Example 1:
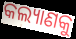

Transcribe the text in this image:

କଲ୍ୟାଣକୁ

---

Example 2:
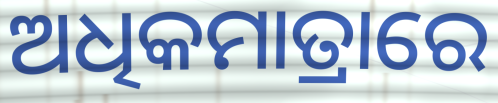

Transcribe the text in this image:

ଅଧିକମାତ୍ରାରେ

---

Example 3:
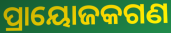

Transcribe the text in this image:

ପ୍ରାୟୋଜକଗଣ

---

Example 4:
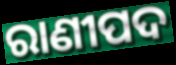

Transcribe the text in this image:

ରାଣୀପଦ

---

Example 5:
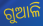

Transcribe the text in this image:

ଗୁଆଳି